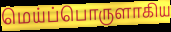
மெய்ப்பொருளாகிய